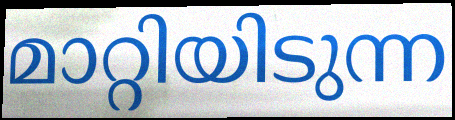
മാറ്റിയിടുന്ന